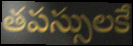
తపస్సులకే